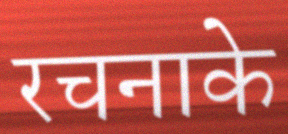
रचनाके